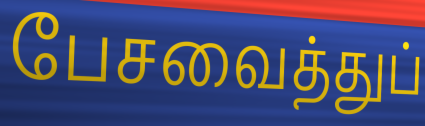
பேசவைத்துப்